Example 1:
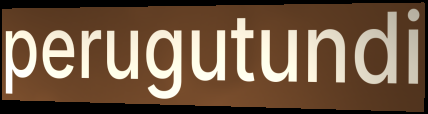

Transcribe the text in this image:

perugutundi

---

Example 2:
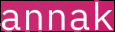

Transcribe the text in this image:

annak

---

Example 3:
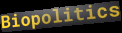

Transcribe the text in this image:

Biopolitics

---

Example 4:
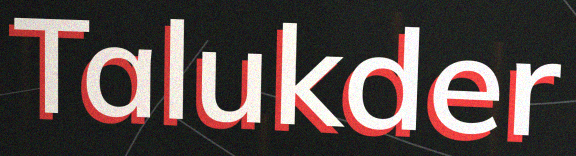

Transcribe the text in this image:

Talukder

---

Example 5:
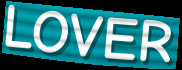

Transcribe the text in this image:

LOVER